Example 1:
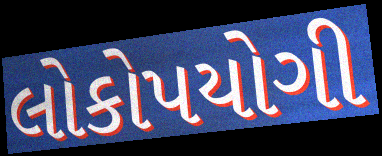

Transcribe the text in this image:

લોકોપયોગી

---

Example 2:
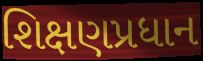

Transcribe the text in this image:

શિક્ષણપ્રધાન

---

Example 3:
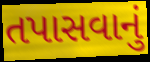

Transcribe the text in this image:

તપાસવાનું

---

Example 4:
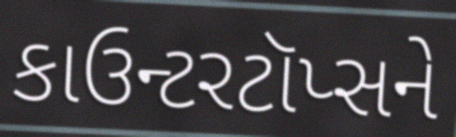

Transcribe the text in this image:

કાઉન્ટરટૉપ્સને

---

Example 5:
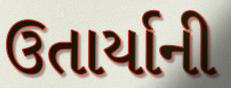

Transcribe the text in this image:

ઉતાર્યાની